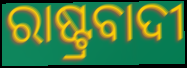
ରାଷ୍ଟ୍ରବାଦୀ